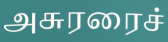
அசுரரைச்